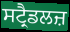
ਸਟ੍ਰੈਡਲਜ਼